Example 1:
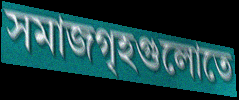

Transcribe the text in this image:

সমাজগৃহগুলোতে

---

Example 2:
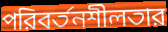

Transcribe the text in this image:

পরিবর্তনশীলতার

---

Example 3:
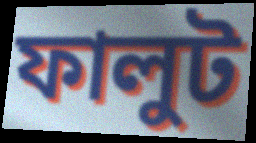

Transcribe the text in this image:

ফালুট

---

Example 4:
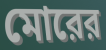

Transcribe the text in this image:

মোরের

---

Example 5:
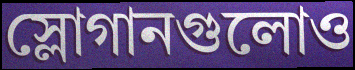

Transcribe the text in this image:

স্লোগানগুলোও